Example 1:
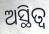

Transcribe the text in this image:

ଅସ୍ଥିତ୍ଵ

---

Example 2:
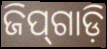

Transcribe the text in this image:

ଜିପ୍‍ଗାଡ଼ି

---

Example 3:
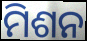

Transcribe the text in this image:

ମିଶନ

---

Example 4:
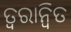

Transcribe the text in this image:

ତ୍ୱରାନ୍ୱିତ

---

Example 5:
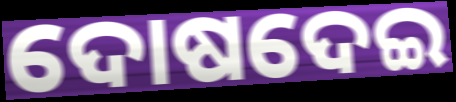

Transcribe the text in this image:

ଦୋଷଦେଇ